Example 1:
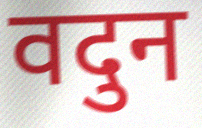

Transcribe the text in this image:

वदुन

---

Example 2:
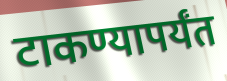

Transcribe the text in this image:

टाकण्यापर्यंत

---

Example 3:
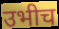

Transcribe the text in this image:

उभीच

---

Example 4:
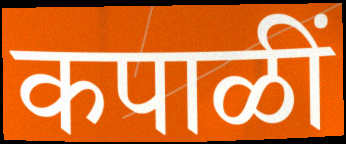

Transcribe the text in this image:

कपाळीं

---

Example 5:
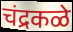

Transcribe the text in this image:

चंद्रकळे